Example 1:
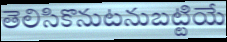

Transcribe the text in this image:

తెలిసికొనుటనుబట్టియే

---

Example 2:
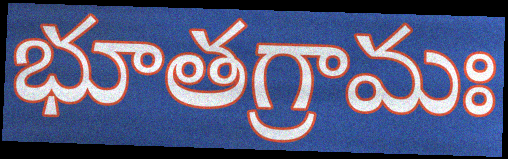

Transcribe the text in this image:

భూతగ్రామః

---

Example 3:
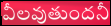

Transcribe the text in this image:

వీలవుతుందనీ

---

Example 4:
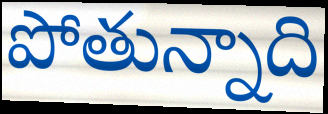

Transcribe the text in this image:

పోతున్నాది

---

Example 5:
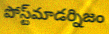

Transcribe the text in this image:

పోస్ట్‌మాడర్నిజం